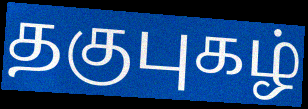
தகுபுகழ்